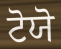
ਟੋਯੋ